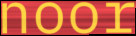
noor